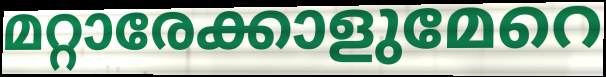
മറ്റാരേക്കാളുമേറെ